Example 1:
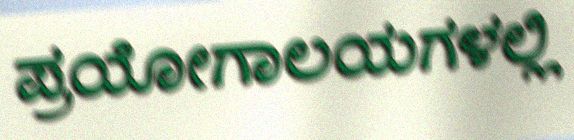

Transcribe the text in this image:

ಪ್ರಯೋಗಾಲಯಗಳಲ್ಲಿ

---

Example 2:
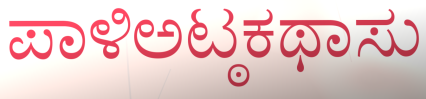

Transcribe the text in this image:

ಪಾಳಿಅಟ್ಠಕಥಾಸು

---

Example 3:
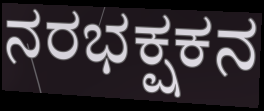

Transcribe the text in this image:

ನರಭಕ್ಷಕನ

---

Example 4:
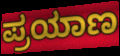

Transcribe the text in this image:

ಪ್ರಯಾಣ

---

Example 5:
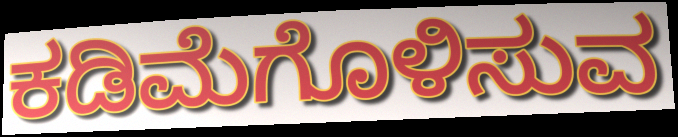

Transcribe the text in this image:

ಕಡಿಮೆಗೊಳಿಸುವ